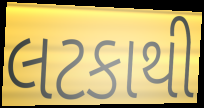
લટકાથી